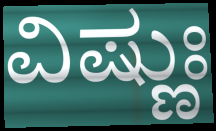
ವಿಷ್ಣುಃ